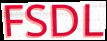
FSDL